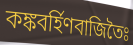
কঙ্কবর্হিণবাজিতৈঃ